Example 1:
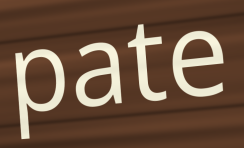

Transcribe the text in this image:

pate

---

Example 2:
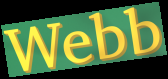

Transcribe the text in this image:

Webb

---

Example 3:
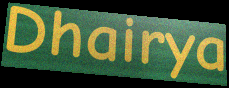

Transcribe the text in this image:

Dhairya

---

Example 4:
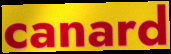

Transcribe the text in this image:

canard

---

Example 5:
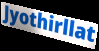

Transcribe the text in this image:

Jyothirllat